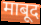
माबूद